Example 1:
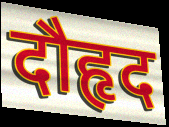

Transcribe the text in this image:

दौहृद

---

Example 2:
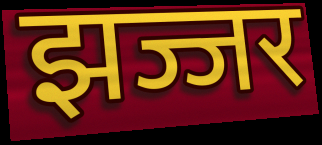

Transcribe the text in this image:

झज्जर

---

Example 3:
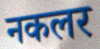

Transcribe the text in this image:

नकलर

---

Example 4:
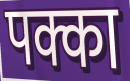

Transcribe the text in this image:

पक्का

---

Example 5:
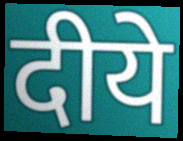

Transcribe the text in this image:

दीये